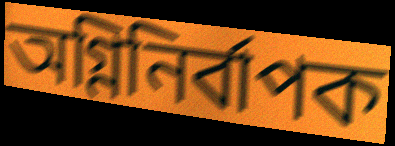
অগ্নিনিৰ্বাপক